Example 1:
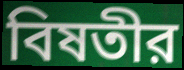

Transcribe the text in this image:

বিষতীর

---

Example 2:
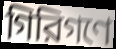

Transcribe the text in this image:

গিরিগণে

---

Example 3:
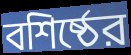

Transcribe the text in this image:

বশিষ্ঠের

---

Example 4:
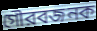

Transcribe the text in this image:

গৌরবজনক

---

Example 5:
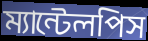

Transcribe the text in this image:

ম্যান্টেলপিস